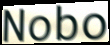
Nobo